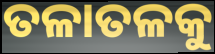
ତଳାତଳକୁ